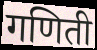
गणिती